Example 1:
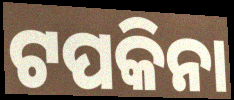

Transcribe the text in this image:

ଟପକିନା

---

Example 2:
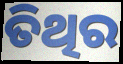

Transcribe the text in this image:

ତିଥିର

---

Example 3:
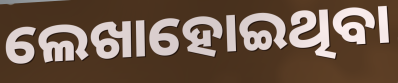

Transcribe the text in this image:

ଲେଖାହୋଇଥିବା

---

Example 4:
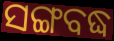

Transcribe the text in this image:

ସଙ୍ଗବଦ୍ଧ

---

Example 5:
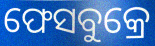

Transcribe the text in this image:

ଫେସବୁକ୍ରେ